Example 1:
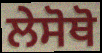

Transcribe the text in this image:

ਲੇਸੋਥੋ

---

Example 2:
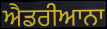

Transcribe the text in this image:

ਐਡਰੀਆਨਾ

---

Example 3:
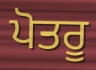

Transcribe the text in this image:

ਪੋਤਰੂ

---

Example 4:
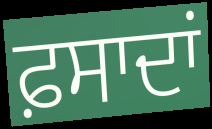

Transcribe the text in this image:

ਫ਼ਸਾਦਾਂ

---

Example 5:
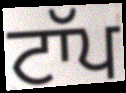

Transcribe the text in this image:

ਟਾੱਪ